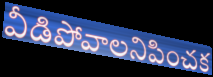
వీడిపోవాలనిపించక